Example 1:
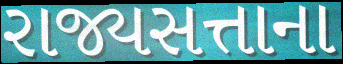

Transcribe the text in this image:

રાજ્યસત્તાના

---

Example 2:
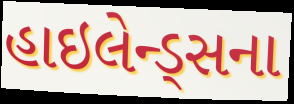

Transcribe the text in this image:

હાઇલેન્ડ્સના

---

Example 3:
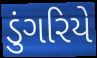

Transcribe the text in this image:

ડુંગરિયે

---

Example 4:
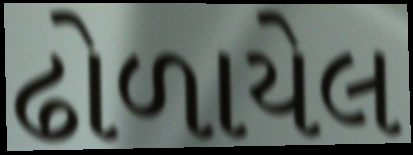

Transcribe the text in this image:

ઢોળાયેલ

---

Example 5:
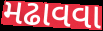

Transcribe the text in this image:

મઢાવવા